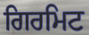
ਗਿਰਮਿਟ